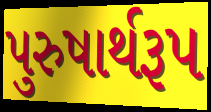
પુરુષાર્થરૂપ